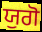
ਯੁਗੋ